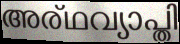
അര്ഥവ്യാപ്തി